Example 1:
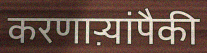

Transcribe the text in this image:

करणाऱ्‍यांपैकी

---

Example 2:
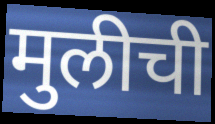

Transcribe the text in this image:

मुलीची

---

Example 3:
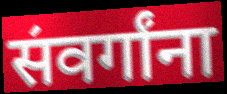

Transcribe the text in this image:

संवर्गांना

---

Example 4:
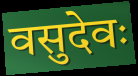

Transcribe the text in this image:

वसुदेवः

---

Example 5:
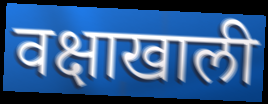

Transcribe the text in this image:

वक्षाखाली